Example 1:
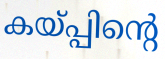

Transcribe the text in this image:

കയ്പ്പിന്റെ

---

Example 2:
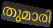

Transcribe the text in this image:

തുമാരി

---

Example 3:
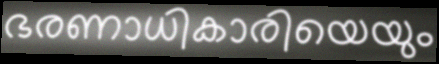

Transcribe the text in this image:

ഭരണാധികാരിയെയും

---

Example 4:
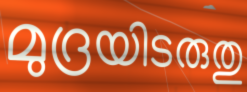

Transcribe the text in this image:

മുദ്രയിടരുതു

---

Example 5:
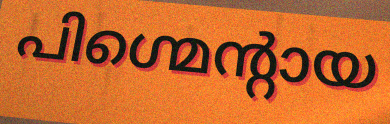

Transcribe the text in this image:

പിഗ്മെന്റായ